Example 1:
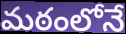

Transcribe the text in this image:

మఠంలోనే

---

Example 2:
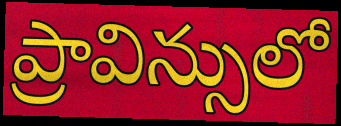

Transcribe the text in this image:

ప్రావిన్సులో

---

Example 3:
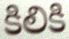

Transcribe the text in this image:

కిలికి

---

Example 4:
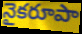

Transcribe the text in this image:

నైకరూపా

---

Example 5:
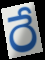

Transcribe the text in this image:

రే